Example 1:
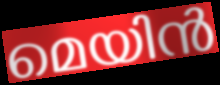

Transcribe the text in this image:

മെയിൻ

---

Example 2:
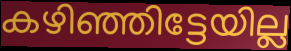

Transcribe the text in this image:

കഴിഞ്ഞിട്ടേയില്ല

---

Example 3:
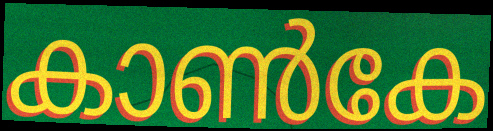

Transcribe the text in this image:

കാൺകേ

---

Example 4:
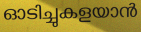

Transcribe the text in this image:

ഓടിച്ചുകളയാൻ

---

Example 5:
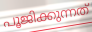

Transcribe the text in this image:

പൂജിക്കുന്നത്